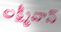
లక్ష్మీవాన్